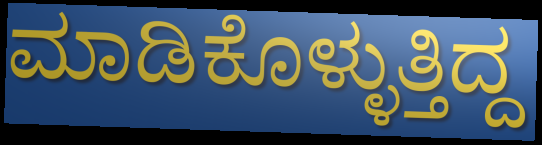
ಮಾಡಿಕೊಳ್ಳುತ್ತಿದ್ದ